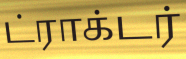
ட்ராக்டர்